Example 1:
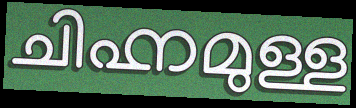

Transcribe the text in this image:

ചിഹ്നമുള്ള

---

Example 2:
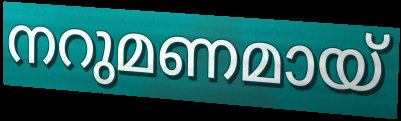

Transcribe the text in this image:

നറുമണമായ്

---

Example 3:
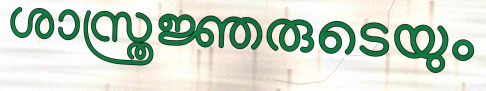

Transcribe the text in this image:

ശാസ്ത്രജ്ഞരുടെയും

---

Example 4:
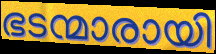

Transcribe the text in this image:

ഭടന്മാരായി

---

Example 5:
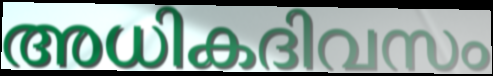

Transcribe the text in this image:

അധികദിവസം